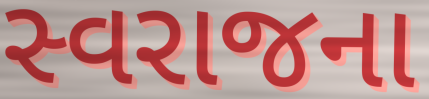
સ્વરાજના